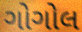
ગોગોલ